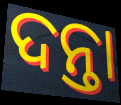
ଦନ୍ତା